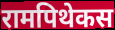
रामपिथेकस